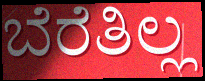
ಬೆರೆತಿಲ್ಲ